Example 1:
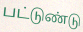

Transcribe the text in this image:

பட்டுண்டு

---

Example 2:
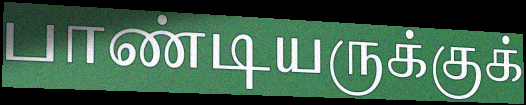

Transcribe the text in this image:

பாண்டியருக்குக்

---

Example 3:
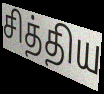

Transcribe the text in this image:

சித்திய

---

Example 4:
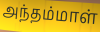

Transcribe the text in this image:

அந்தம்மாள்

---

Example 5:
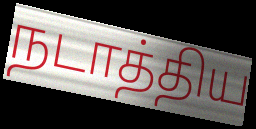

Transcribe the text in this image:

நடாத்திய